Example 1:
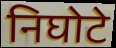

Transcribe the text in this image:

निघोटे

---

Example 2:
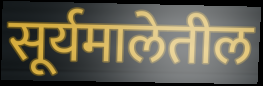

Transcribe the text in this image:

सूर्यमालेतील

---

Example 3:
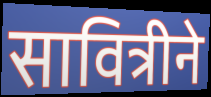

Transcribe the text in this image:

सावित्रीने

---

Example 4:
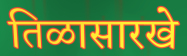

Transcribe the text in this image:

तिळासारखे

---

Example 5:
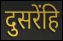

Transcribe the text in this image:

दुसरेंहि